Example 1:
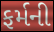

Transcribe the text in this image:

ફર્મની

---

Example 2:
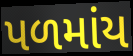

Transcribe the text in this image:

પળમાંય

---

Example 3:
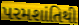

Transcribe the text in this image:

પરમશાંતિથી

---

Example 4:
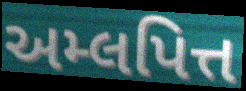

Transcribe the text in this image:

અમ્લપિત્ત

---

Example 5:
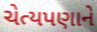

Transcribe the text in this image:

ચેત્યપણાને